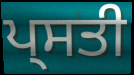
ਪ੍ਸਤੀ